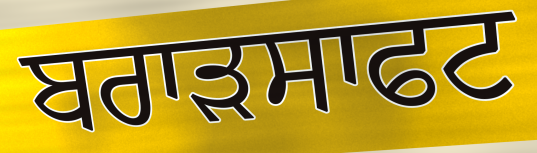
ਬਰਾੜਸਾਫਟ